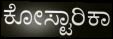
ಕೋಸ್ಟಾರಿಕಾ